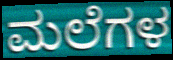
ಮಲೆಗಳ